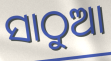
ସାଠୁଆ